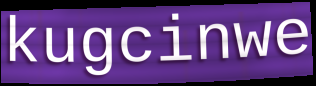
kugcinwe